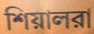
শিয়ালরা